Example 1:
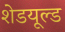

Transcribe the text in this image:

शेडयूल्ड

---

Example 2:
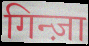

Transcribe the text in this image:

गिन्ज़ा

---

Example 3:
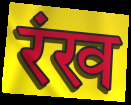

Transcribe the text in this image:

रंख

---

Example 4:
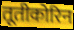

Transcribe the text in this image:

तूतीकोरिन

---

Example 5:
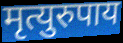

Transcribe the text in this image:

मृत्युरुपाय